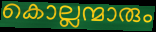
കൊല്ലന്മാരും